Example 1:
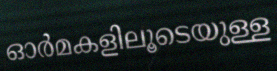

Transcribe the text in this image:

ഓർമകളിലൂടെയുള്ള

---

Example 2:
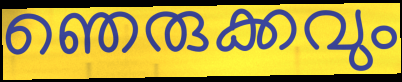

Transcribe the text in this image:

ഞെരുക്കവും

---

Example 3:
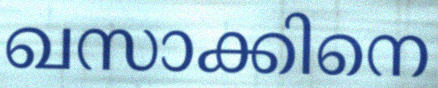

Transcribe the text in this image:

ഖസാക്കിനെ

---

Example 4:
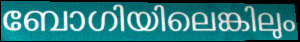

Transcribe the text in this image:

ബോഗിയിലെങ്കിലും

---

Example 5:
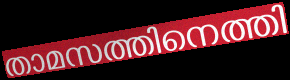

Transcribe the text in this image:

താമസത്തിനെത്തി